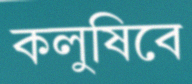
কলুষিবে